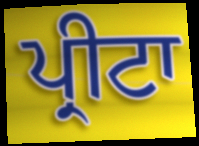
ਪ੍ਰੀਟਾ